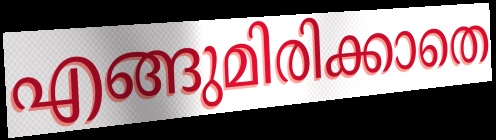
എങ്ങുമിരിക്കാതെ